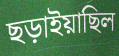
ছড়াইয়াছিল